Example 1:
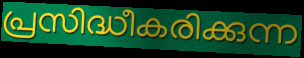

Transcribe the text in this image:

പ്രസിദ്ധീകരിക്കുന്ന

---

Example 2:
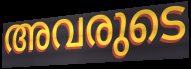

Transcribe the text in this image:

അവരുടെ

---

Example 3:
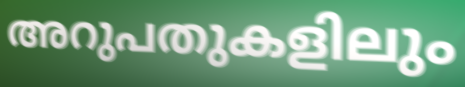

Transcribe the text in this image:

അറുപതുകളിലും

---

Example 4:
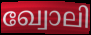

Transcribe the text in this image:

ഖ്വോലി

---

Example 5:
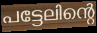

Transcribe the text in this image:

പട്ടേലിന്റെ